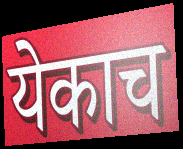
येकाच